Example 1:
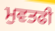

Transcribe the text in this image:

ਮੁਵਤਫੀ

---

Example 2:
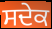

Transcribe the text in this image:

ਸਦੇਕ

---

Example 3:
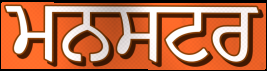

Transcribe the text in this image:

ਮਨਸਟਰ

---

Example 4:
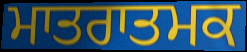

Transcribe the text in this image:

ਮਾਤਰਾਤਮਕ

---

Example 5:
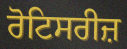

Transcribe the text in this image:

ਰੋਟਿਸਰੀਜ਼